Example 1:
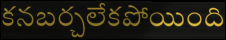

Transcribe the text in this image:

కనబర్చలేకపోయింది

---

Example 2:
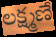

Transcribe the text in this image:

లక్ష్మణే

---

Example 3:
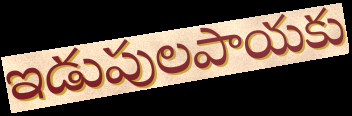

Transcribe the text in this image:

ఇడుపులపాయకు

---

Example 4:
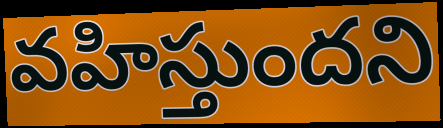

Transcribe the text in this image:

వహిస్తుందని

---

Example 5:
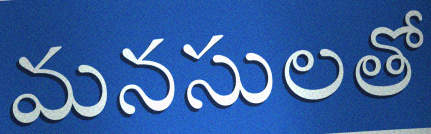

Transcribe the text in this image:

మనసులతో